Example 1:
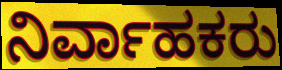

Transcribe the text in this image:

ನಿರ್ವಾಹಕರು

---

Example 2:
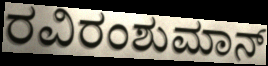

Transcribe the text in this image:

ರವಿರಂಶುಮಾನ್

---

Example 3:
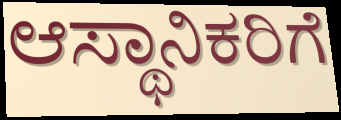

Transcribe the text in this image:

ಆಸ್ಥಾನಿಕರಿಗೆ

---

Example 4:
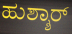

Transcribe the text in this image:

ಹುಶ್ಶಾರ್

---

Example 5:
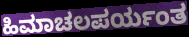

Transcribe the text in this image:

ಹಿಮಾಚಲಪರ್ಯಂತ